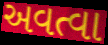
અવત્વા